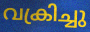
വക്രിച്ചു